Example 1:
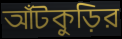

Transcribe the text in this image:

আঁটকুড়ির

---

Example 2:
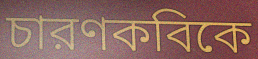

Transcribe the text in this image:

চারণকবিকে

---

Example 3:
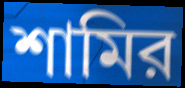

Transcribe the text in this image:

শামির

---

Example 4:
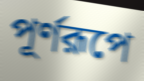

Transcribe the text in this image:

পূর্ণরূপে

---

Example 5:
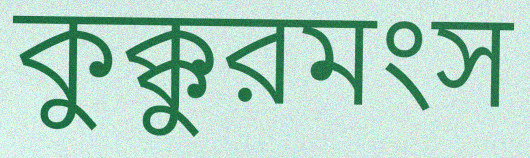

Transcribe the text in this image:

কুক্কুরমংস